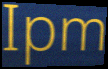
Ipm